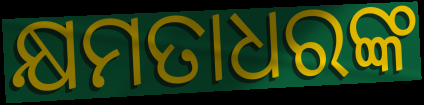
କ୍ଷମତାଧରଙ୍କ